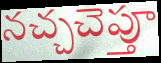
నచ్చచెప్తూ